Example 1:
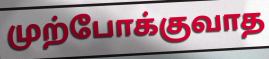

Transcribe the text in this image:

முற்போக்குவாத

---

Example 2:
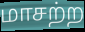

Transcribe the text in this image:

மாசற்ற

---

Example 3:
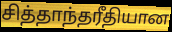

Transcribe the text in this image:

சித்தாந்தரீதியான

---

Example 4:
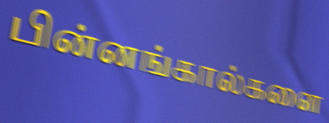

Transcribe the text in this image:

பின்னங்கால்களை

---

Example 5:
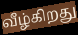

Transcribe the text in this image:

வீழ்கிறது